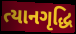
ત્યાનગૃદ્ધિ